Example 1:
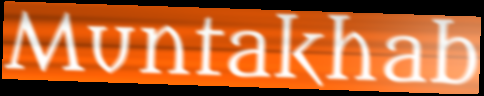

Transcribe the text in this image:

Muntakhab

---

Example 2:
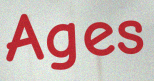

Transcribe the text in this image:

Ages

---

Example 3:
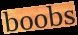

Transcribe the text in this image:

boobs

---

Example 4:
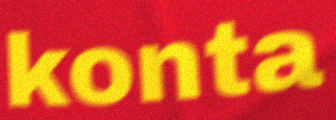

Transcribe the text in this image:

konta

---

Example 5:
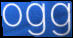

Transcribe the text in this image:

ogg